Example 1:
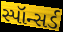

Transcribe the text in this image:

સ્પૉન્સર્ડ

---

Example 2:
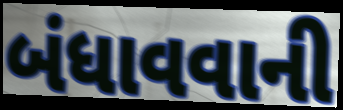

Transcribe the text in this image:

બંધાવવાની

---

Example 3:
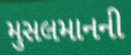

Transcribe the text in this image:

મુસલમાનની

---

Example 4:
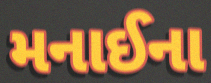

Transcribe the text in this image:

મનાઈના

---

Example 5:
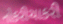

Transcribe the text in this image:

નોકરીચાકરી